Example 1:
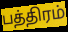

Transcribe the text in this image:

பத்திரம்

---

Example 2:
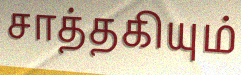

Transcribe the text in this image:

சாத்தகியும்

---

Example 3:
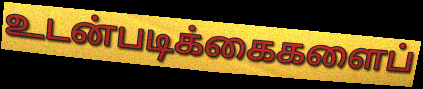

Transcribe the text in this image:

உடன்படிக்கைகளைப்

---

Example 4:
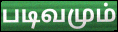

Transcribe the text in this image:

படிவமும்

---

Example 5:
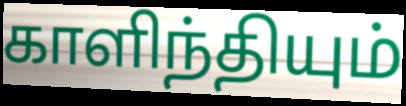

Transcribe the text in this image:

காளிந்தியும்